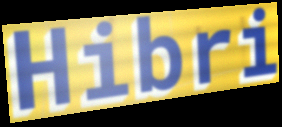
Hibri